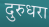
दुरुधरा